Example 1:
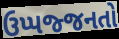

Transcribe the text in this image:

ઉપ્પજ્જનતો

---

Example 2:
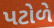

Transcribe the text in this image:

પટોળે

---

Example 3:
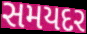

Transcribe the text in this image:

સમયદર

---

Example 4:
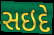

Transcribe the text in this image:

સઇદે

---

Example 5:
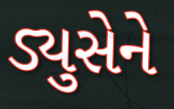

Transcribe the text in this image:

ડ્યુસેને